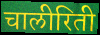
चालीरिती